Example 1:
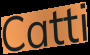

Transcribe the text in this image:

Catti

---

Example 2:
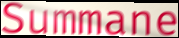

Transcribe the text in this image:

Summane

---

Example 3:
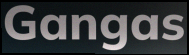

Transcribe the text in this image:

Gangas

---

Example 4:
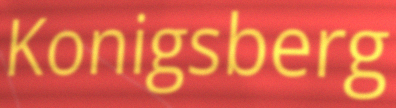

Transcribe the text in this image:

Konigsberg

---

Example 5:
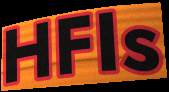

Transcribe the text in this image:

HFIs